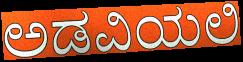
ಅಡವಿಯಲಿ